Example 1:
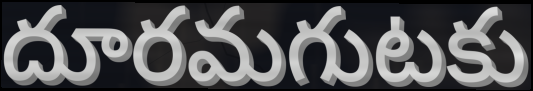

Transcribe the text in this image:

దూరమగుటకు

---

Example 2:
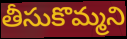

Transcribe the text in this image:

తీసుకొమ్మని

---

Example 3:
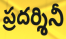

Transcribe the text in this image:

ప్రదర్శినీ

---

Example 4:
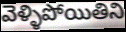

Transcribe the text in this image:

వెళ్ళిపోయితిని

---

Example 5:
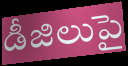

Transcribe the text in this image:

డీజిలుపై